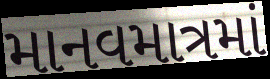
માનવમાત્રમાં